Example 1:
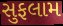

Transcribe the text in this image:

સુફલામ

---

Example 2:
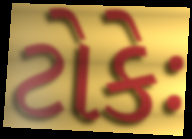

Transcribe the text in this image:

ટોકેઃ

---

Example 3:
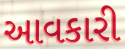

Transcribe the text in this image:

આવકારી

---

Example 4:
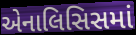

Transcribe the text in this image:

એનાલિસિસમાં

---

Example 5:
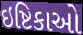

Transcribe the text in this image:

ઇષ્ટિકાઓ